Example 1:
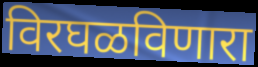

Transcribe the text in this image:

विरघळविणारा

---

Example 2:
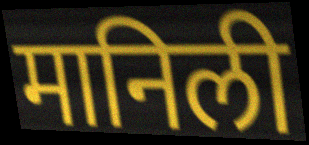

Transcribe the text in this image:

मानिली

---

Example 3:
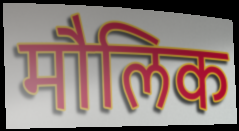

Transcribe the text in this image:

मौलिक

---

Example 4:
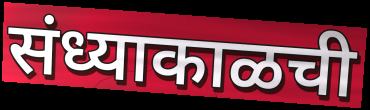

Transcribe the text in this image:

संध्याकाळची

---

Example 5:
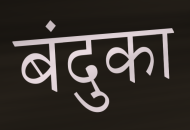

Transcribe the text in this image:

बंदुका